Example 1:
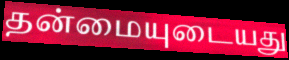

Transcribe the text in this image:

தன்மையுடையது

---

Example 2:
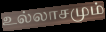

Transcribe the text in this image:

உல்லாசமும்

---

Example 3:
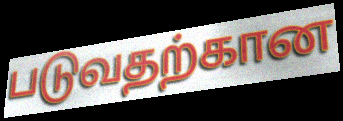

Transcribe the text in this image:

படுவதற்கான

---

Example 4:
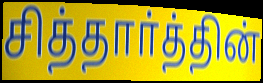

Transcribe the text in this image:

சித்தார்த்தின்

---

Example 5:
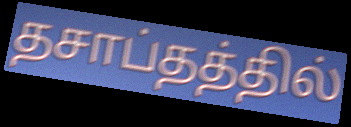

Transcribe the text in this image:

தசாப்தத்தில்